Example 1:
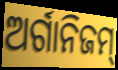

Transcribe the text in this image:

ଅର୍ଗାନିଜମ୍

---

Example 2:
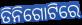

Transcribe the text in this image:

ତିନିଗୋଟିରେ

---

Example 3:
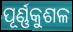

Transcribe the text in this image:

ପୂର୍ଣ୍ଣକୁଶଳ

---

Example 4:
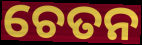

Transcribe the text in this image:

ଚେତନ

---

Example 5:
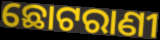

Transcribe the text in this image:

ଛୋଟରାଣୀ